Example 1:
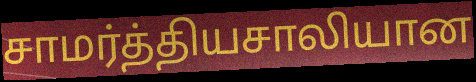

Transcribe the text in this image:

சாமர்த்தியசாலியான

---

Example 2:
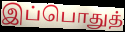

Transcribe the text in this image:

இப்பொதுத்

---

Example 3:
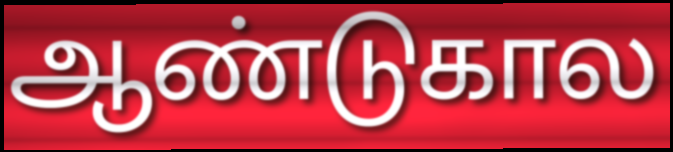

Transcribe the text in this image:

ஆண்டுகால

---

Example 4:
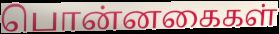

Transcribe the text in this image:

பொன்னகைகள்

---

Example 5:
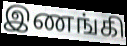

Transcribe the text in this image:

இணங்கி